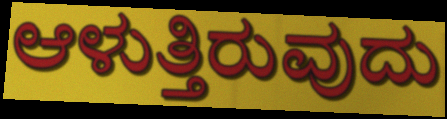
ಆಳುತ್ತಿರುವುದು